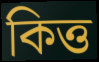
কিত্ত